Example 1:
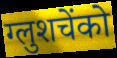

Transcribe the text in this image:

ग्लुशचेंको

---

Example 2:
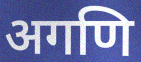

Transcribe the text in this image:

अगणि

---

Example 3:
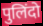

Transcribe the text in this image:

पुलिंदो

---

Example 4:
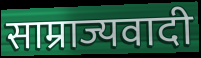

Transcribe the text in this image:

साम्राज्‍यवादी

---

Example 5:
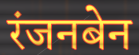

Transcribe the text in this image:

रंजनबेन